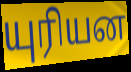
யுரியன